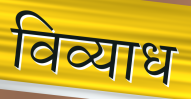
विव्याध